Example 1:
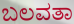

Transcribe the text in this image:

ಬಲವತಾ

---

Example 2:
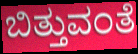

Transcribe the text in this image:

ಬಿತ್ತುವಂತೆ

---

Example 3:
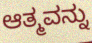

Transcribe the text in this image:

ಆತ್ಮವನ್ನು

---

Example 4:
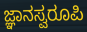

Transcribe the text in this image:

ಜ್ಞಾನಸ್ವರೂಪಿ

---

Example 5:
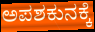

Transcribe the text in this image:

ಅಪಶಕುನಕ್ಕೆ